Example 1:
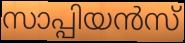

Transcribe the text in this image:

സാപ്പിയൻസ്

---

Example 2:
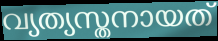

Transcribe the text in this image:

വ്യത്യസ്തനായത്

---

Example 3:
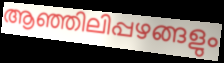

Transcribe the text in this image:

ആഞ്ഞിലിപ്പഴങ്ങളും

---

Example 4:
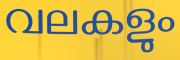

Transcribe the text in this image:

വലകളും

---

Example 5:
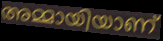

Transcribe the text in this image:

അമ്മായിയാണ്